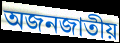
অজনজাতীয়